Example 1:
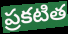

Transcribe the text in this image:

ప్రకటిత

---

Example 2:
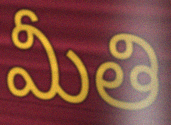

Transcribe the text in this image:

మీతి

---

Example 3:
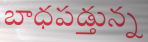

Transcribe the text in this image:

బాధపడ్తున్న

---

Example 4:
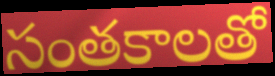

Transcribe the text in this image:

సంతకాలతో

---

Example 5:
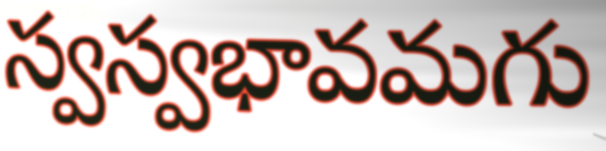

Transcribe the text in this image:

స్వస్వభావమగు